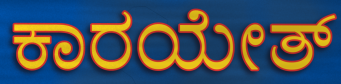
ಕಾರಯೇತ್